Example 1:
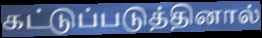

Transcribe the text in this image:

கட்டுப்படுத்தினால்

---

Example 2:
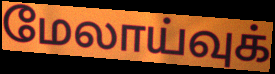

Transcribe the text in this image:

மேலாய்வுக்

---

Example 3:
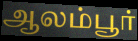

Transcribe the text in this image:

ஆலம்பூர்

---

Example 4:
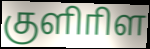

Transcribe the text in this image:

குளிரிள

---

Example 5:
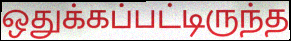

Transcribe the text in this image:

ஒதுக்கப்பட்டிருந்த